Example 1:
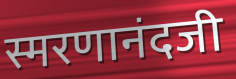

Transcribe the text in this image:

स्मरणानंदजी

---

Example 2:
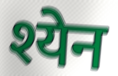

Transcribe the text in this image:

श्येन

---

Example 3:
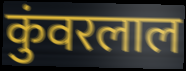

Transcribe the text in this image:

कुंवरलाल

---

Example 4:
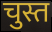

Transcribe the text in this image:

चुस्त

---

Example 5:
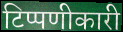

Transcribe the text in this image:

टिप्पणीकारी